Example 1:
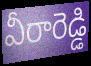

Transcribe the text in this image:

వీరారెడ్డి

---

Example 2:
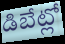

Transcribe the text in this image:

డిబేట్లో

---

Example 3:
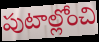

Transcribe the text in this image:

పుటాల్లోంచి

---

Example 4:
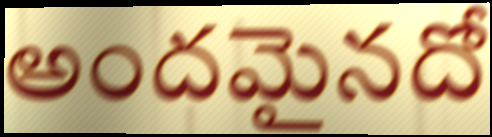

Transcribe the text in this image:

అందమైనదో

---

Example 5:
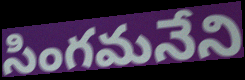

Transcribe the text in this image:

సింగమనేని